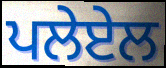
ਪਲੇਏਲ